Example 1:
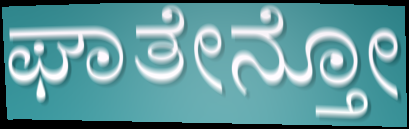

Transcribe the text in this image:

ಘಾತೇನ್ತೋ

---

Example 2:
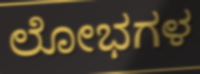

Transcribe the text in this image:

ಲೋಭಗಳ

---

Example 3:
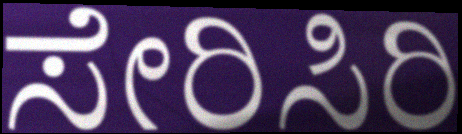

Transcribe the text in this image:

ಸೇರಿಸಿರಿ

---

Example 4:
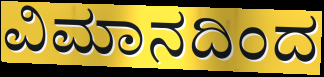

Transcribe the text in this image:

ವಿಮಾನದಿಂದ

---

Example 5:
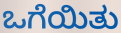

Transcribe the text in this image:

ಒಗೆಯಿತು